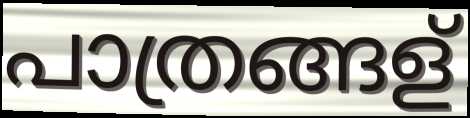
പാത്രങ്ങള്